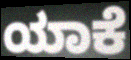
ಯಾಕೆ